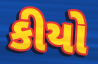
કીયો